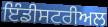
ਇੰਡੀਸਟਰੀਅਲ